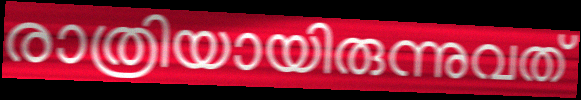
രാത്രിയായിരുന്നുവത്